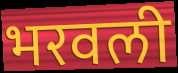
भरवली